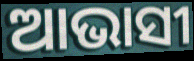
ଆଭାସୀ